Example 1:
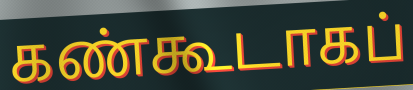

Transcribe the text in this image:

கண்கூடாகப்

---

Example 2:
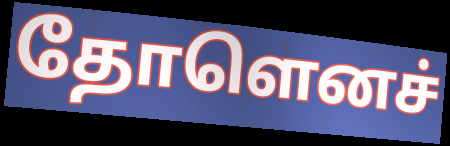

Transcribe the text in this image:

தோளெனச்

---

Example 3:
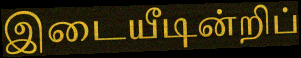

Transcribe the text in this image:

இடையீடின்றிப்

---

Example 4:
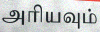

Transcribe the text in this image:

அரியவும்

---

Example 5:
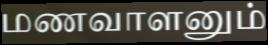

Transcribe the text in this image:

மணவாளனும்